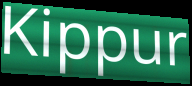
Kippur